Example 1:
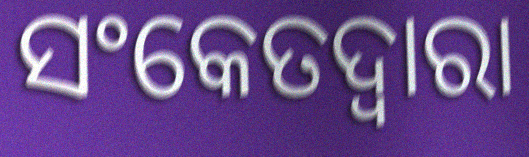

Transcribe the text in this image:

ସଂକେତଦ୍ୱାରା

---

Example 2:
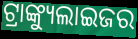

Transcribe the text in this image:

ଟ୍ରାଙ୍କ୍ୟୁଲାଇଜର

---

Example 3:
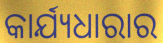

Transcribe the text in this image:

କାର୍ଯ୍ୟଧାରାର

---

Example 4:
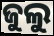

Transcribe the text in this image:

ଜୁଲୁ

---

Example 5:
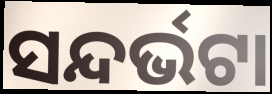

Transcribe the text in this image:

ସନ୍ଦର୍ଭଟା